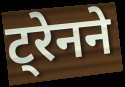
ट्रेनने